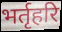
भर्तृहरि